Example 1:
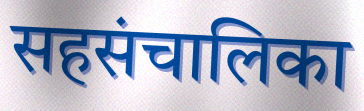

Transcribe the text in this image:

सहसंचालिका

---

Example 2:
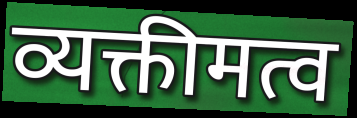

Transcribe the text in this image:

व्यक्तीमत्व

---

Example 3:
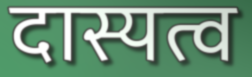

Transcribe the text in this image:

दास्यत्व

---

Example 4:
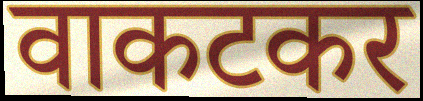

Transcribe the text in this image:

वाकटकर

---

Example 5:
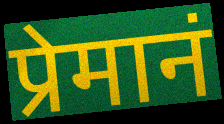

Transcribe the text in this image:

प्रेमानं